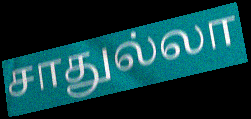
சாதுல்லா